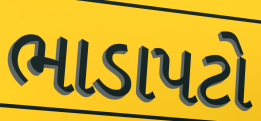
ભાડાપટો